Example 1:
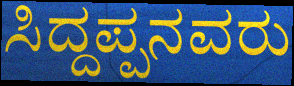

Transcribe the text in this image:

ಸಿದ್ದಪ್ಪನವರು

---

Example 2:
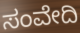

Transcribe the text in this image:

ಸಂವೇದಿ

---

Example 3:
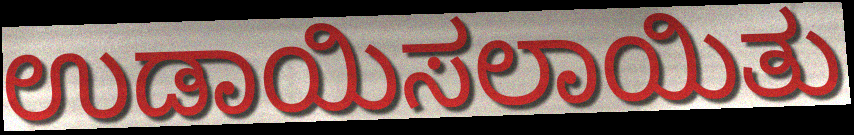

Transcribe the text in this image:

ಉಡಾಯಿಸಲಾಯಿತು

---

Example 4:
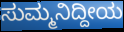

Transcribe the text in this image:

ಸುಮ್ಮನಿದ್ದೀಯ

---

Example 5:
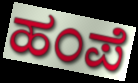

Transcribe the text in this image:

ಹಂಪೆ